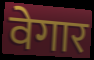
वेगार